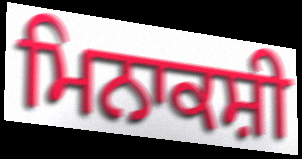
ਮਿਨਾਕਸ਼ੀ